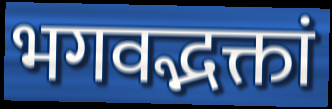
भगवद्भक्तां